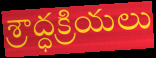
శ్రాద్ధక్రియలు